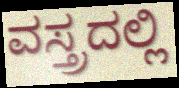
ವಸ್ತ್ರದಲ್ಲಿ